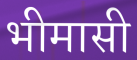
भीमासी